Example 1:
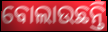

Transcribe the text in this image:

ବୋଲାଉଛନ୍ତି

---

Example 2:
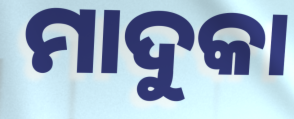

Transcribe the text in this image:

ମାଦୁକା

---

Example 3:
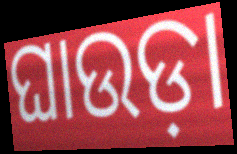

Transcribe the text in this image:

ଘାଉଡ଼ା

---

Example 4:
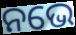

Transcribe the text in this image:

ନଭେ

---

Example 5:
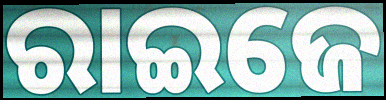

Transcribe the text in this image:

ରାଇଜେ